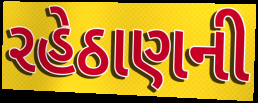
રહેઠાણની